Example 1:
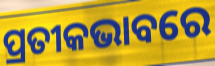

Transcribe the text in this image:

ପ୍ରତୀକଭାବରେ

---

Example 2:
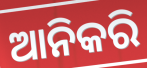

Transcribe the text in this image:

ଆନିକରି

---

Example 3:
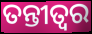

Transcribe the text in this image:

ତନ୍ତୀତ୍ୱର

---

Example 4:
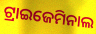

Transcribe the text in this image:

ଟ୍ରାଇଜେମିନାଲ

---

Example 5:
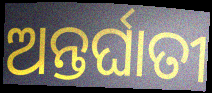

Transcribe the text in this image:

ଅନ୍ତର୍ଘାତୀ